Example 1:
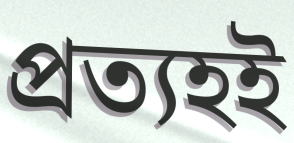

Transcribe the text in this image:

প্রত্যহই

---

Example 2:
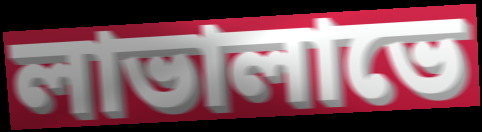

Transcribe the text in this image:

লাভালাভে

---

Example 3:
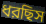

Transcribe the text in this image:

ধরছিস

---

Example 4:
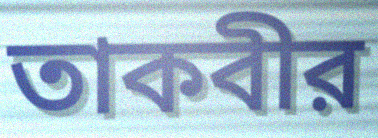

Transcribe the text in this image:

তাকবীর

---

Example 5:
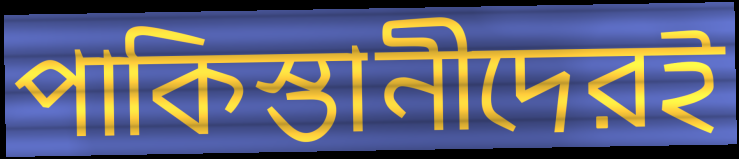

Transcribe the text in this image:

পাকিস্তানীদেরই